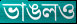
ভাঙলও